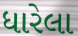
ધારેલા